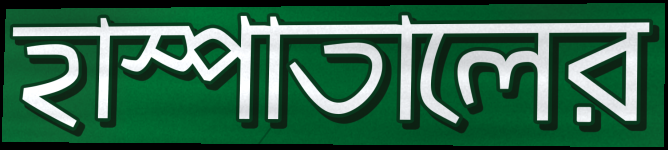
হাস্পাতালের